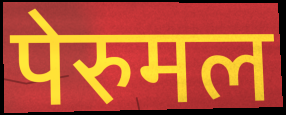
पेरुमल